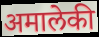
अमालेकी